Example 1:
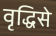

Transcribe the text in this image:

वृद्धिसे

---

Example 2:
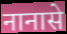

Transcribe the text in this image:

नानासे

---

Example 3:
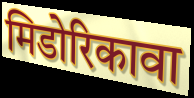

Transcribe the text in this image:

मिडोरिकावा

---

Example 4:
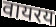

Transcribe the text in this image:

वायरय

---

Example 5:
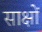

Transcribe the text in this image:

साक्षों